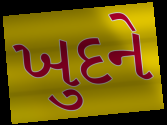
ખુદને